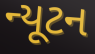
ન્યૂટન